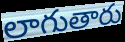
లాగుతారు